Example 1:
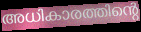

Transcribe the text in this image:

അധികാരത്തിന്റെ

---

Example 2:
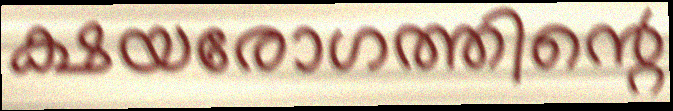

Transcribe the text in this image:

ക്ഷയരോഗത്തിന്റെ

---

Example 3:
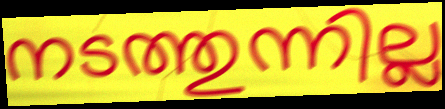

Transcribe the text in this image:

നടത്തുന്നില്ല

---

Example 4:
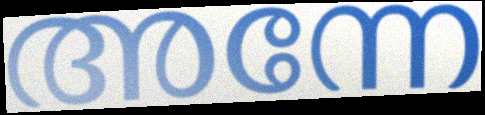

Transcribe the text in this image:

അന്നേ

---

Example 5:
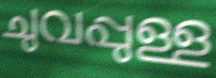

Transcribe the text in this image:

ചുവപ്പുള്ള